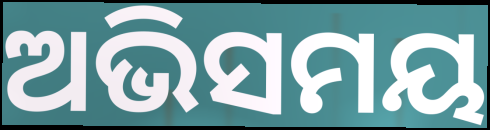
ଅଭିସମୟ